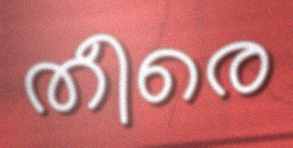
തീരെ